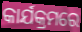
କାର୍ଯକ୍ରମରେ